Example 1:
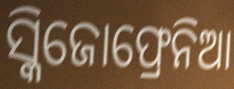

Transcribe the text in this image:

ସ୍କିଜୋଫ୍ରେନିଆ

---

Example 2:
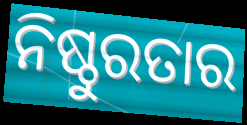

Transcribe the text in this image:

ନିଷ୍ଠୁରତାର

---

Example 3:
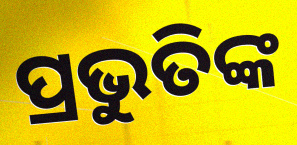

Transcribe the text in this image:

ପ୍ରଭୁତିଙ୍କ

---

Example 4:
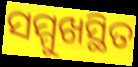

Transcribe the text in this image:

ସମ୍ମୁଖସ୍ଥିତ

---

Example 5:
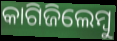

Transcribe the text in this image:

କାଗିଜିଲେମ୍ବୁ